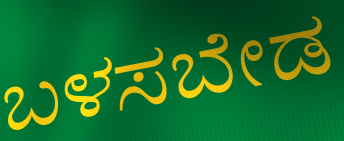
ಬಳಸಬೇಡ